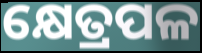
କ୍ଷେତ୍ରପଳ